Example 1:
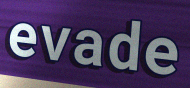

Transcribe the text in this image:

evade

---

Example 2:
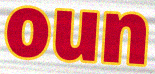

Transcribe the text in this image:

oun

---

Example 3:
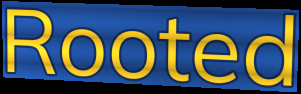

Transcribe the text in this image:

Rooted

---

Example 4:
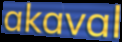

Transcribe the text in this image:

akaval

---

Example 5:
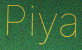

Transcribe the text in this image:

Piya